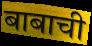
बाबाची